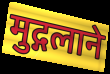
मुद्गलाने